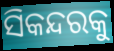
ସିକନ୍ଦରକୁ